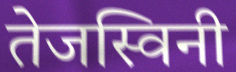
तेजस्विनी